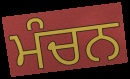
ਮੰਚਨ